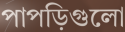
পাপড়িগুলো